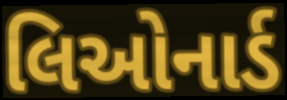
લિઓનાર્ડ